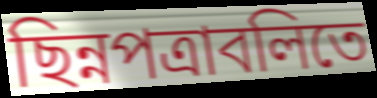
ছিন্নপত্রাবলিতে